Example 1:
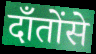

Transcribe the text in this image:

दाँतोंसे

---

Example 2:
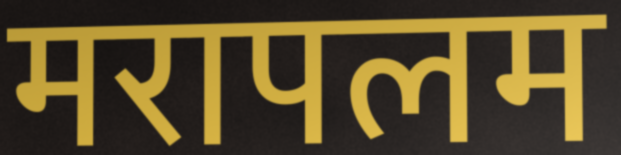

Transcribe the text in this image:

मरापलम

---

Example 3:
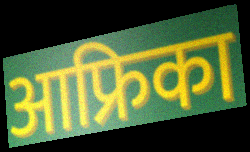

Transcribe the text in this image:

आफ्रिका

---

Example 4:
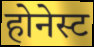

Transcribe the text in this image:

होनेस्ट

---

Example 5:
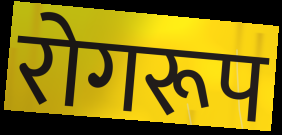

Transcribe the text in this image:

रोगरूप